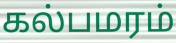
கல்பமரம்